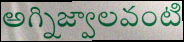
అగ్నిజ్వాలవంటి